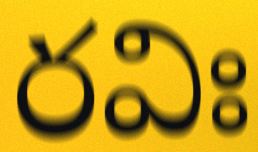
రవిః